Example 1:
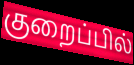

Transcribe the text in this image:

குறைப்பில்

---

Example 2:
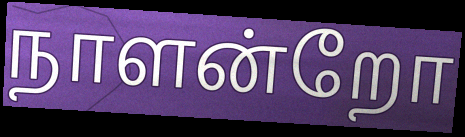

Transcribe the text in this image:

நாளன்றோ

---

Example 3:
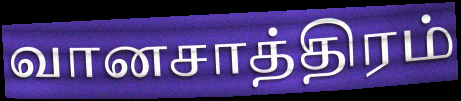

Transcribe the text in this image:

வானசாத்திரம்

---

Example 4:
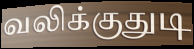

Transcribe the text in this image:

வலிக்குதுடி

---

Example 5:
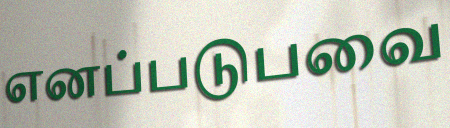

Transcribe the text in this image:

எனப்படுபவை